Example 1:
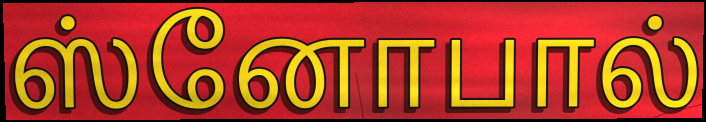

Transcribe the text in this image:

ஸ்னோபால்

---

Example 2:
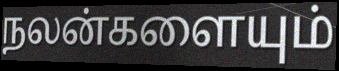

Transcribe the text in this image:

நலன்களையும்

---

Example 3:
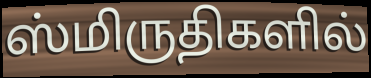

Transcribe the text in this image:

ஸ்மிருதிகளில்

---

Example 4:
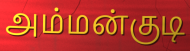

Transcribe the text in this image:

அம்மன்குடி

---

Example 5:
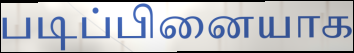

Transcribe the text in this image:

படிப்பினையாக